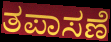
ತಪಾಸಣೆ